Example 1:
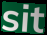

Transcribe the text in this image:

sit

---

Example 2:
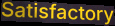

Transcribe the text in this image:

Satisfactory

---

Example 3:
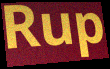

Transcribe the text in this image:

Rup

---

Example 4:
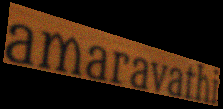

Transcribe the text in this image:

amaravathi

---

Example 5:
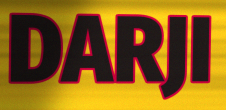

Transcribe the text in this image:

DARJI